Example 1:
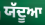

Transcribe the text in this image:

ਯੱਦੂਆ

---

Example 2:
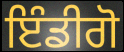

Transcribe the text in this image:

ਇੰਡੀਗੋ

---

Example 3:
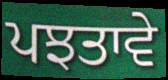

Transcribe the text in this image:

ਪਝਤਾਵੇ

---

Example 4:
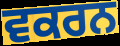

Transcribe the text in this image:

ਵਕਰਨ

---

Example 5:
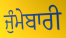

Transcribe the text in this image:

ਜੁੰਮੇਬਾਰੀ